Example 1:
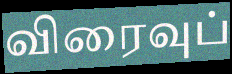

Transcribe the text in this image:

விரைவுப்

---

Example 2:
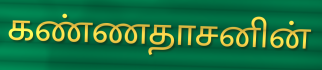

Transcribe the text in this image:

கண்ணதாசனின்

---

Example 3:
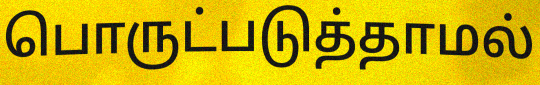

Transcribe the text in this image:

பொருட்படுத்தாமல்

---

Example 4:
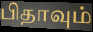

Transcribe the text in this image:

பிதாவும்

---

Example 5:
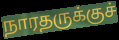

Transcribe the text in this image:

நாரதருக்குச்